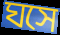
ঘসে